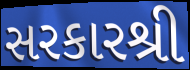
સરકારશ્રી